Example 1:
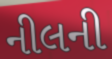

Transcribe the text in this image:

નીલની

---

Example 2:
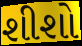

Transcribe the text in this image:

શીશો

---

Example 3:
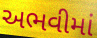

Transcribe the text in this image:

અભવીમાં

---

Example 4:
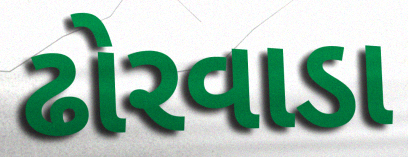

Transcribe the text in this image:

ઢોરવાડા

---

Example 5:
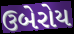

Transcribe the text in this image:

ઉબેરોય